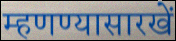
म्हणण्यासारखें